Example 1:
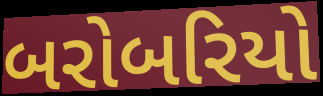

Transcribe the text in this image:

બરોબરિયો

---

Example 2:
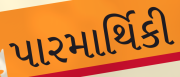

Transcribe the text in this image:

પારમાર્થિકી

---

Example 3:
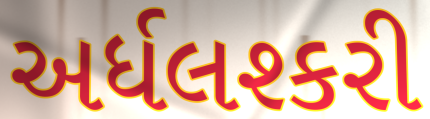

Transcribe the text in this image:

અર્ધલશ્કરી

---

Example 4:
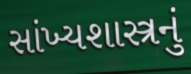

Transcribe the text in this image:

સાંખ્યશાસ્ત્રનું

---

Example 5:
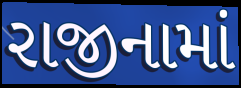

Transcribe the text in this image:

રાજીનામાં